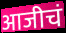
आजीचं